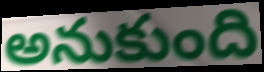
అనుకుంది